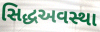
સિદ્ધઅવસ્થા